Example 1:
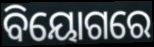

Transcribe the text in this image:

ବିୟୋଗରେ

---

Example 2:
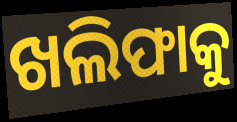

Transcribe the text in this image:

ଖଲିଫାକୁ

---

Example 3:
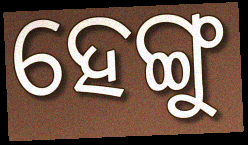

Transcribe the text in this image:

ହେଙ୍ଗୁ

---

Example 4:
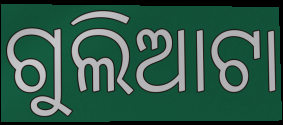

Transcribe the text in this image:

ଗୁଲିଆଟା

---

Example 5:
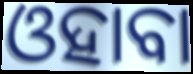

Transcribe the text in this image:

ଓହାବା